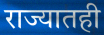
राज्यातही